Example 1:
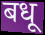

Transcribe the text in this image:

बधू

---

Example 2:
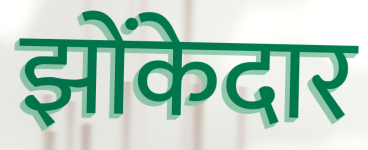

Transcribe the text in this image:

झोंकेदार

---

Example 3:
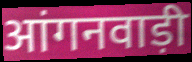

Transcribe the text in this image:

आंगनवाड़ी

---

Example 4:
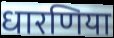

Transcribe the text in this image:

धारणिया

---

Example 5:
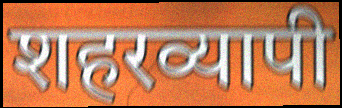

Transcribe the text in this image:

शहरव्यापी